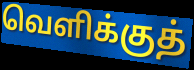
வெளிக்குத்